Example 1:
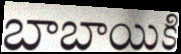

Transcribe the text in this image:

బాబాయికి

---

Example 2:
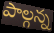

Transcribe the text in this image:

పాల్గన్న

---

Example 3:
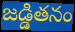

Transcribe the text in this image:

జడ్డితనం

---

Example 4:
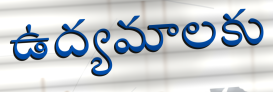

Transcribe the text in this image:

ఉద్యమాలకు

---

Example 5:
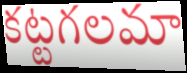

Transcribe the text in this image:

కట్టగలమా